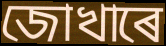
জোখাৰে